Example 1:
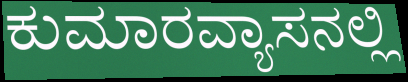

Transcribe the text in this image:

ಕುಮಾರವ್ಯಾಸನಲ್ಲಿ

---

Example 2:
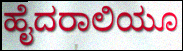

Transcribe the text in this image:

ಹೈದರಾಲಿಯೂ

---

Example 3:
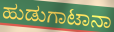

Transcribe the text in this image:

ಹುಡುಗಾಟಾನಾ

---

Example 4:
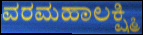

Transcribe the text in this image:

ವರಮಹಾಲಕ್ಷ್ಮಿ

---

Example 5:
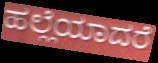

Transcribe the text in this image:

ಹಲ್ಲೆಯಾದರೆ